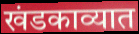
खंडकाव्यात